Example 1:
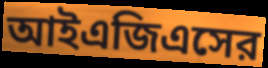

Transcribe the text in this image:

আইএজিএসের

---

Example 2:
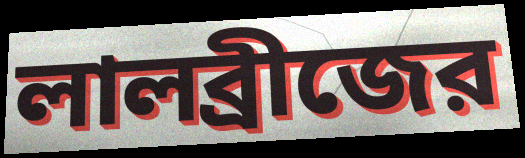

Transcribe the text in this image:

লালব্রীজের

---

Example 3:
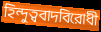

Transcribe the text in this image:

হিন্দুত্ববাদবিরোধী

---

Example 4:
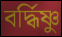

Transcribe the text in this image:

বর্দ্ধিষ্ণু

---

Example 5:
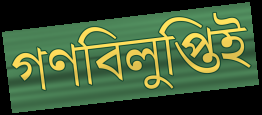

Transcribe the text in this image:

গণবিলুপ্তিই